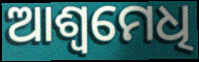
ଆଶ୍ୱମେଧି